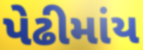
પેઢીમાંય